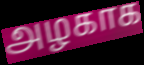
அழகாக